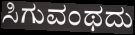
ಸಿಗುವಂಥದು